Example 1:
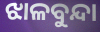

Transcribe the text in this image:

ଝାଳବୁନ୍ଦା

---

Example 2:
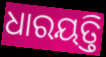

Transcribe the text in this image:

ଧାରୟତ୍ତି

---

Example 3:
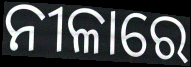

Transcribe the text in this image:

ନୀଳାରେ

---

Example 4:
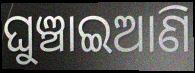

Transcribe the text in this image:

ଘୁଞ୍ଚାଇଆଣି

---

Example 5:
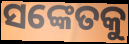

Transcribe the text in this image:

ସଙ୍କେତକୁ